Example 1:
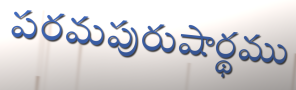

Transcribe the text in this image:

పరమపురుషార్థము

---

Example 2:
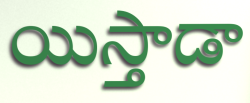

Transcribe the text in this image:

యిస్తాడా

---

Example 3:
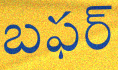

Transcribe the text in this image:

బఫర్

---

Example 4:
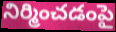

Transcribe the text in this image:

నిర్మించడంపై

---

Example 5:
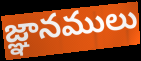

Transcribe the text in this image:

జ్ఞానములు